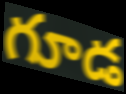
గూడ